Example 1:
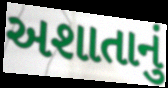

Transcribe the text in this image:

અશાતાનું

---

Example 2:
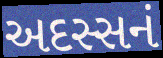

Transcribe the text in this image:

અદસ્સનં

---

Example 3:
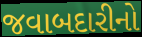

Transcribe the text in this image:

જવાબદારીનો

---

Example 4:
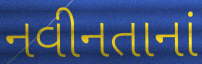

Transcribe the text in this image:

નવીનતાનાં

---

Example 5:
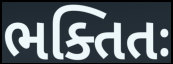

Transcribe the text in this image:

ભક્તિતઃ